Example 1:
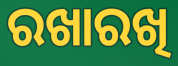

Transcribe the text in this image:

ରଖାରଖି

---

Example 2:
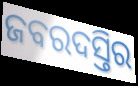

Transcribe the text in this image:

ଜବରଦସ୍ତିର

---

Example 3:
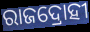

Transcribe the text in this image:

ରାଜଦ୍ରୋହୀ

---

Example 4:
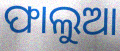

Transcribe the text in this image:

ଫାଲୁଆ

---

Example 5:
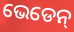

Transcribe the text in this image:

ଭେଡେନ୍